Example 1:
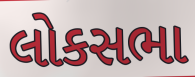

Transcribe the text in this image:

લોકસભા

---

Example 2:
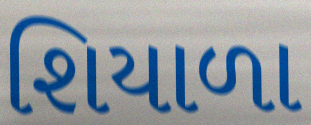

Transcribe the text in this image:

શિયાળા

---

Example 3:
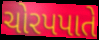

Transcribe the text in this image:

ચોરપપાતે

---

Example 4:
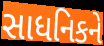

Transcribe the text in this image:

સાધનિકને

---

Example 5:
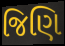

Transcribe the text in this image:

જિણિ